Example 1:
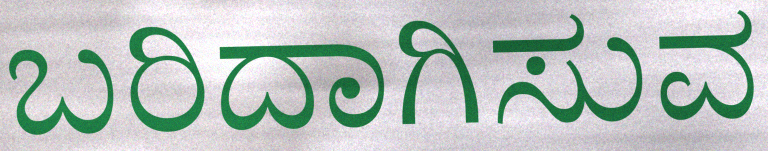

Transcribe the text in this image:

ಬರಿದಾಗಿಸುವ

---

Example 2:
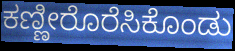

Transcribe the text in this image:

ಕಣ್ಣೀರೊರೆಸಿಕೊಂಡು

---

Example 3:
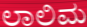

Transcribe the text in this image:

ಲಾಲಿಮ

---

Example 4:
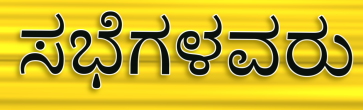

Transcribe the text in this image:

ಸಭೆಗಳವರು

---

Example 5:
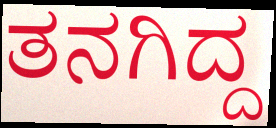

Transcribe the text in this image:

ತನಗಿದ್ದ